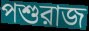
পশুরাজ